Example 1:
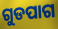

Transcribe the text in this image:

ଗୁଡପାଗ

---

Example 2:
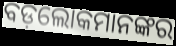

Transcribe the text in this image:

ବଡ଼ଲୋକମାନଙ୍କର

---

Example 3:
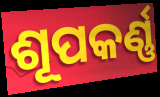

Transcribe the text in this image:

ଶୂପକର୍ଣ୍ଣ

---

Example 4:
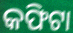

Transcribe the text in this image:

କଫିଟା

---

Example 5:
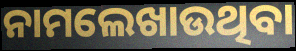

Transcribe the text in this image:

ନାମଲେଖାଉଥିବା